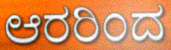
ಆರರಿಂದ